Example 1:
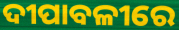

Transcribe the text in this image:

ଦୀପାବଳୀରେ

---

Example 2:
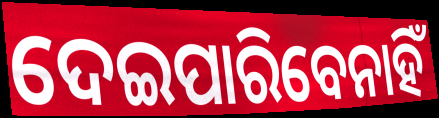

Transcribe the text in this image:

ଦେଇପାରିବେନାହିଁ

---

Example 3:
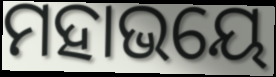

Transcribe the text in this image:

ମହାଭୟେ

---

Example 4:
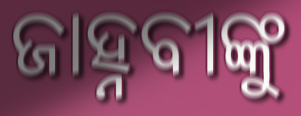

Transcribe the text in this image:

ଜାହ୍ନବୀଙ୍କୁ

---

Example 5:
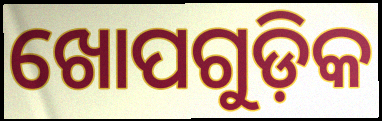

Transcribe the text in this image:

ଖୋପଗୁଡ଼ିକ